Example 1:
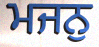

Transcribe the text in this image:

ਮਜਨੁ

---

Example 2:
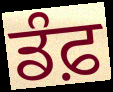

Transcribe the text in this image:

ਡੰਫ਼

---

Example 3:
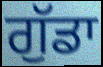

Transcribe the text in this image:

ਗੁੱਡਾ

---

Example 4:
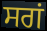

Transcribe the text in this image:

ਸਗਂ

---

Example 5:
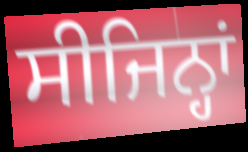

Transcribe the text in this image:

ਸੀਜਿਨ੍ਹਾਂ